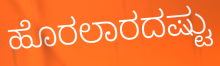
ಹೊರಲಾರದಷ್ಟು